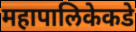
महापालिकेकडे